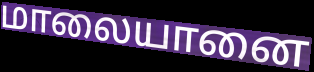
மாலையானை